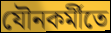
যৌনকর্মীতে